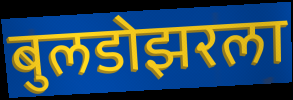
बुलडोझरला